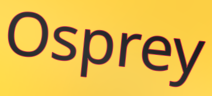
Osprey